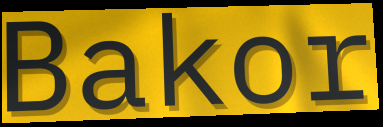
Bakor